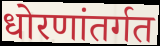
धोरणांतर्गत